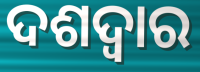
ଦଶଦ୍ୱାର